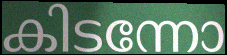
കിടന്നോ